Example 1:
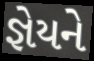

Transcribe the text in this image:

જ્ઞેયને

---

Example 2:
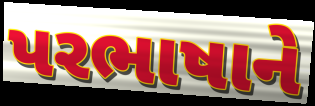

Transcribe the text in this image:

પરભાષાને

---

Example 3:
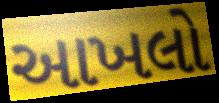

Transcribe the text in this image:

આખલો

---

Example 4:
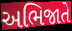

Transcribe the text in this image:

અભિજાતે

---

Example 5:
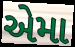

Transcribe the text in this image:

એમા